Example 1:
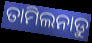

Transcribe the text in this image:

ତାମିଲନାଡୁ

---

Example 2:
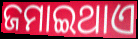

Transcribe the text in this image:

ଜମାଇଥାଏ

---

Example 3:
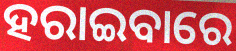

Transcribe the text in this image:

ହରାଇବାରେ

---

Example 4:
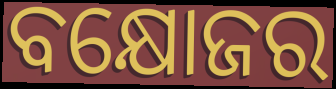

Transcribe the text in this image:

ବକ୍ଷୋଜର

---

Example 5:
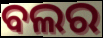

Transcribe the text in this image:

ବଲର